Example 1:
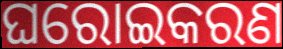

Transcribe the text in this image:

ଘରୋଇକରଣ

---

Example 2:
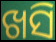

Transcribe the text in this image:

ଖସି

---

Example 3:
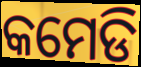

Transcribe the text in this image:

କମେଡି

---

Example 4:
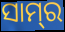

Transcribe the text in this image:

ସାମ୍‌ର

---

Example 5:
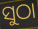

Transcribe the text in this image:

ସୁଠା